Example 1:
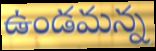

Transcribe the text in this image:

ఉండమన్న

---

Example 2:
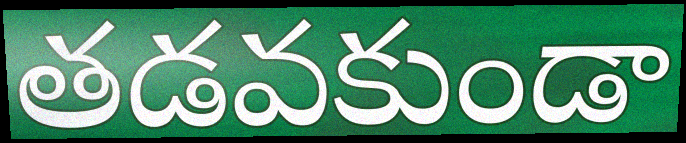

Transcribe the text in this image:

తడవకుండా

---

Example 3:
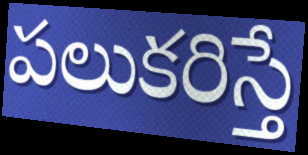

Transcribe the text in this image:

పలుకరిస్తే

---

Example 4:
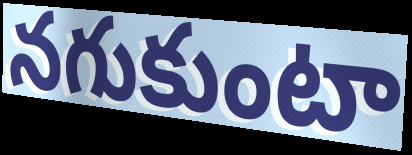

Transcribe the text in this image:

నగుకుంటా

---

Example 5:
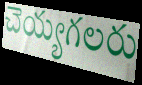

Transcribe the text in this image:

చెయ్యగలరు